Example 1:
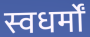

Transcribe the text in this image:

स्वधर्मों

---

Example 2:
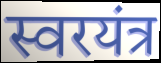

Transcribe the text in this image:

स्वरयंत्र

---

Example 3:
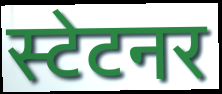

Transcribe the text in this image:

स्टेटनर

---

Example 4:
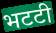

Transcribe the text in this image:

भटटी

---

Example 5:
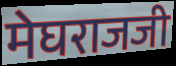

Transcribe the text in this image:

मेघराजजी